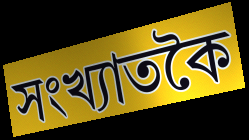
সংখ্যাতকৈ